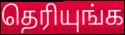
தெரியுங்க